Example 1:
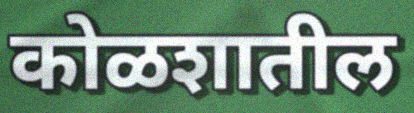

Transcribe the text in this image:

कोळशातील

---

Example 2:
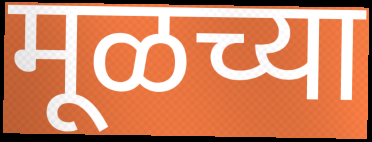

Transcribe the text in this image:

मूळच्या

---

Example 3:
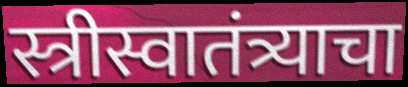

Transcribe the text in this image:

स्त्रीस्वातंत्र्याचा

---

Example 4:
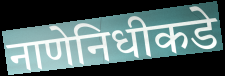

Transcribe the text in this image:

नाणेनिधीकडे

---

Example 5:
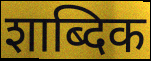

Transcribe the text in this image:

शाब्दिक